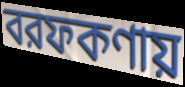
বরফকণায়